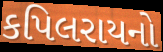
કપિલરાયનો